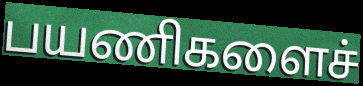
பயணிகளைச்